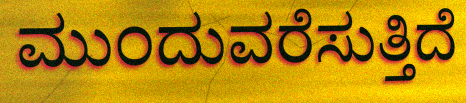
ಮುಂದುವರೆಸುತ್ತಿದೆ